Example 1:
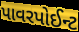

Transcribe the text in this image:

પાવરપોઈન્ટ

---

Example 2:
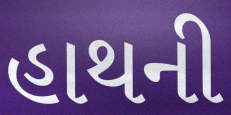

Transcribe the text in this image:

હાથની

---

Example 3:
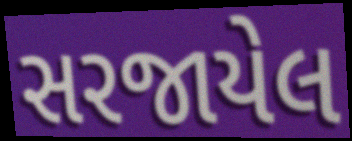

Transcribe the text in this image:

સરજાયેલ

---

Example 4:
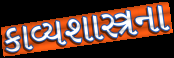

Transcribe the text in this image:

કાવ્યશાસ્ત્રના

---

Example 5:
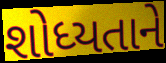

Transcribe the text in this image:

શોધ્યતાને